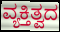
ವ್ಯಕ್ತಿತ್ವದ